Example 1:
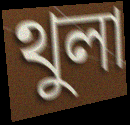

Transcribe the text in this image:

থুলা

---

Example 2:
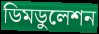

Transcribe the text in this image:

ডিমডুলেশন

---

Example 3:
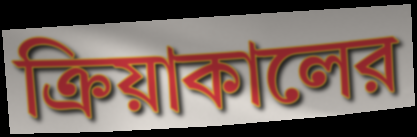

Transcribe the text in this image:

ক্রিয়াকালের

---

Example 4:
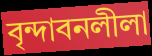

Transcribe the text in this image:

বৃন্দাবনলীলা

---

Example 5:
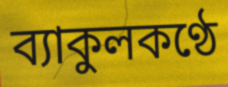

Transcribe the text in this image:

ব্যাকুলকণ্ঠে